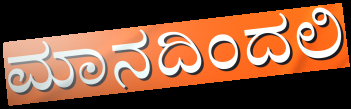
ಮಾನದಿಂದಲಿ